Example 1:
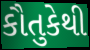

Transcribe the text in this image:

કૌતુકેથી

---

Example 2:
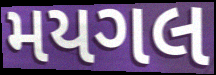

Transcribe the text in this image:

મયગલ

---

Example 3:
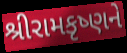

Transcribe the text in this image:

શ્રીરામકૃષ્ણને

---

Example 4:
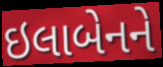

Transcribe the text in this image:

ઇલાબેનને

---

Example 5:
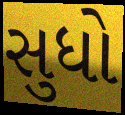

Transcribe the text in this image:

સુધો